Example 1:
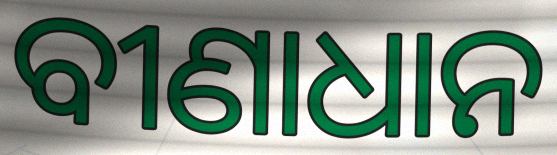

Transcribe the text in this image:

ବୀଣାଧାନ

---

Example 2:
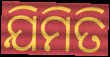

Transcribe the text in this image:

ଯିମିତି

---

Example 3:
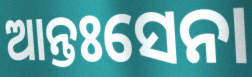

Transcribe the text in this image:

ଆନ୍ତଃସେନା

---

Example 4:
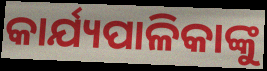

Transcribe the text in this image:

କାର୍ଯ୍ୟପାଳିକାଙ୍କୁ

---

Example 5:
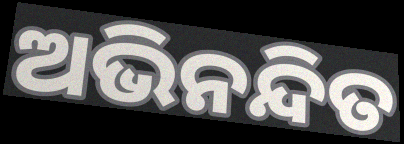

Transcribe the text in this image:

ଅଭିନନ୍ଦିତ